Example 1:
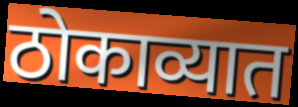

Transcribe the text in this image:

ठोकाव्यात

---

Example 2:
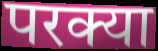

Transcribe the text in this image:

परक्या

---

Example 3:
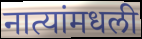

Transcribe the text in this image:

नात्यांमधली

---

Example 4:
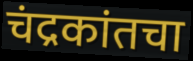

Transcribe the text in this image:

चंद्रकांतचा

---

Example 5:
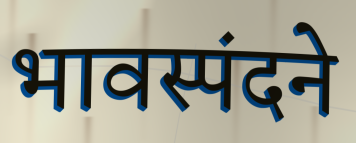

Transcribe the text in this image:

भावस्पंदने